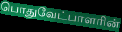
பொதுவேட்பாளரின்